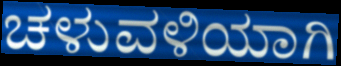
ಚಳುವಳಿಯಾಗಿ